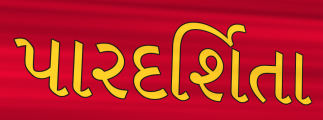
પારદર્શિતા